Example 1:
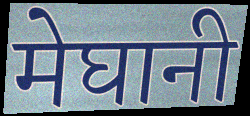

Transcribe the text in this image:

मेघानी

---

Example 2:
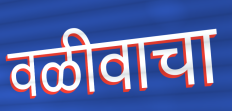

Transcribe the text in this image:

वळीवाचा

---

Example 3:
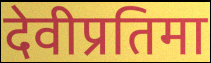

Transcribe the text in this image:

देवीप्रतिमा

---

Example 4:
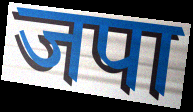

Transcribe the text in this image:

जपा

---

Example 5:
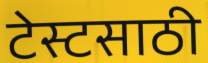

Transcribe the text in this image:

टेस्टसाठी